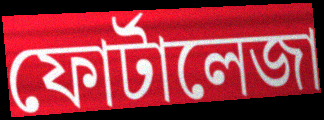
ফোর্টালেজা